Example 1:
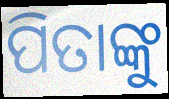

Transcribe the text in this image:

ପିତାଙ୍କୁ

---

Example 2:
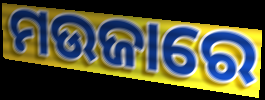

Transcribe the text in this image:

ମଉଜାରେ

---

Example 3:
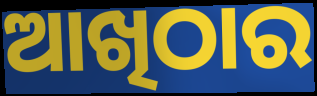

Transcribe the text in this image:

ଆଖିଠାର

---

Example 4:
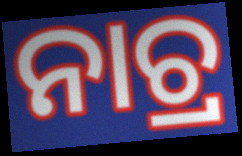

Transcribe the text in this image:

ନାଚ୍ର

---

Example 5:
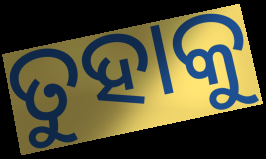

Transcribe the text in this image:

ତୁହାକୁ